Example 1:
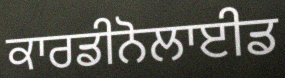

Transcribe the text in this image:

ਕਾਰਡੀਨੋਲਾਈਡ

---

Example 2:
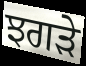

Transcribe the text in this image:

ਝਗਡ਼ੇ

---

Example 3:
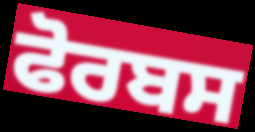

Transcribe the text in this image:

ਫੋਰਬਸ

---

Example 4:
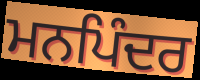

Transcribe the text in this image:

ਮਨਪਿੰਦਰ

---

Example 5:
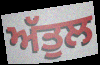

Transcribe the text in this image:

ਅੱਤੁਲ